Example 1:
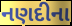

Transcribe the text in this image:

નણદીના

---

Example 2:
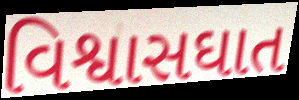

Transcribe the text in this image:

વિશ્વાસઘાત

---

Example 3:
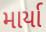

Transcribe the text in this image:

માર્યા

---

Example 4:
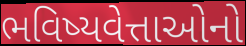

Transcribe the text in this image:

ભવિષ્યવેત્તાઓનો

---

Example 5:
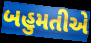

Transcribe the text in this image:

બહુમતીએ